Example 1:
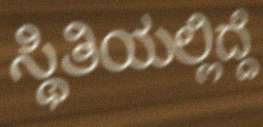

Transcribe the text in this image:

ಸ್ಥಿತಿಯಲ್ಲಿದ್ದೆ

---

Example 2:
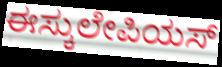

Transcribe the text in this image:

ಈಸ್ಕುಲೇಪಿಯಸ್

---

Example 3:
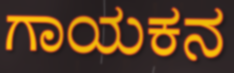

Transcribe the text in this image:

ಗಾಯಕನ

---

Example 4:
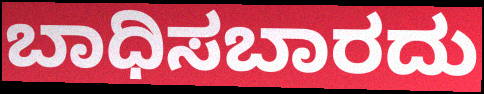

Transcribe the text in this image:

ಬಾಧಿಸಬಾರದು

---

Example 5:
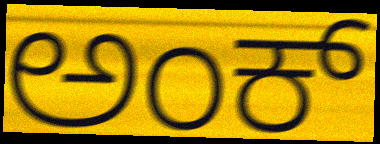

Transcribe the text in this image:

ಅಂಕ್